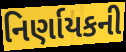
નિર્ણાયકની